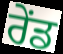
ਰੇਂਡ